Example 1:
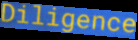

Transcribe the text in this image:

Diligence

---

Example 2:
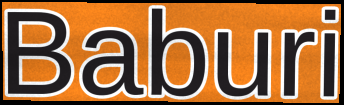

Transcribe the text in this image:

Baburi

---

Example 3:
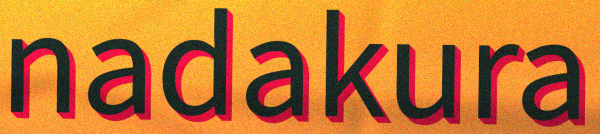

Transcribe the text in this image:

nadakura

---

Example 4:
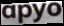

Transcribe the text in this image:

apyo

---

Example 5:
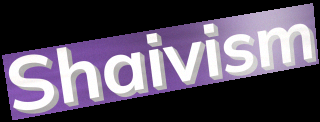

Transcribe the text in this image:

Shaivism